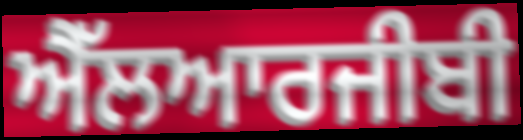
ਐੱਲਆਰਜੀਬੀ